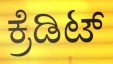
ಕ್ರೆಡಿಟ್